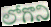
లోగొని